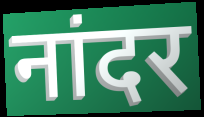
नांदर